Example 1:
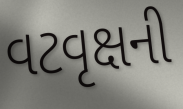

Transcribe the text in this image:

વટવૃક્ષની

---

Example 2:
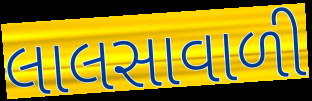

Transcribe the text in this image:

લાલસાવાળી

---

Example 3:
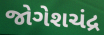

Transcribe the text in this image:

જોગેશચંદ્ર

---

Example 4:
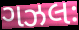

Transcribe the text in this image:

ગઝલઃ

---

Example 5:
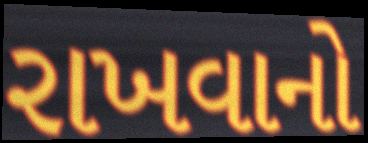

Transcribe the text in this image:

રાખવાનો